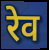
रेव